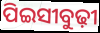
ପିଇସୀବୁଢ଼ୀ